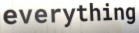
everything